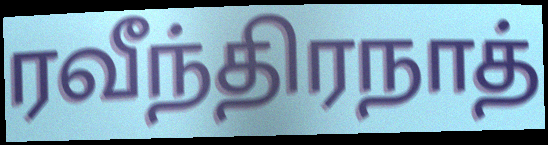
ரவீந்திரநாத்